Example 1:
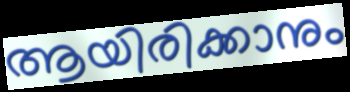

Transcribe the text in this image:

ആയിരിക്കാനും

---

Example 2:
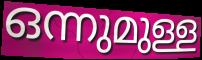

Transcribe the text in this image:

ഒന്നുമുള്ള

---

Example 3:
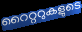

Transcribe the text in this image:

റൈറ്ററുകളുടെ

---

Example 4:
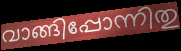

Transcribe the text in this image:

വാങ്ങിപ്പോന്നിതു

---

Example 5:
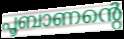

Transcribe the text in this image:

പൂബാണന്റെ